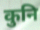
कुनि